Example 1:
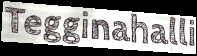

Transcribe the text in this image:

Tegginahalli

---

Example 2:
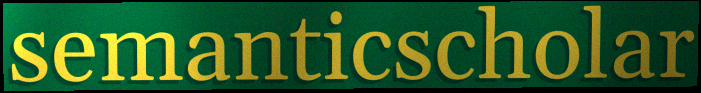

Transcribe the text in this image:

semanticscholar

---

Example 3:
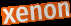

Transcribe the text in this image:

xenon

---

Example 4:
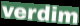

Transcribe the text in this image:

verdim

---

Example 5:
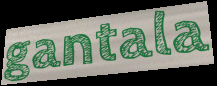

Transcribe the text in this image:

gantala